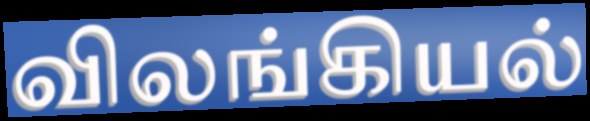
விலங்கியல்